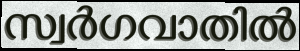
സ്വർഗവാതിൽ